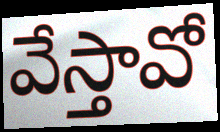
వేస్తావో